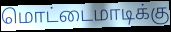
மொட்டைமாடிக்கு